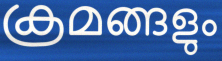
ക്രമങ്ങളും